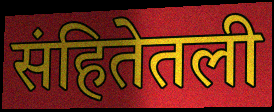
संहितेतली